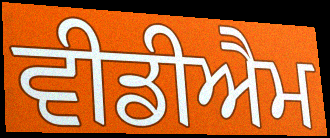
ਵੀਡੀਐਮ